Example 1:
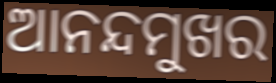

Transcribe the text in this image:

ଆନନ୍ଦମୁଖର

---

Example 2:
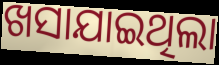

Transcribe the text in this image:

ଖସାଯାଇଥିଲା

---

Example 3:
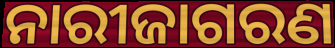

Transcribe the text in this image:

ନାରୀଜାଗରଣ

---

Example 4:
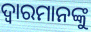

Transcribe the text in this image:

ଦ୍ୱାରମାନଙ୍କୁ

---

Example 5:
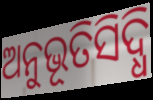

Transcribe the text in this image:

ଅନୁଭୂତିସିଦ୍ଧି